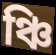
ঞ্চি